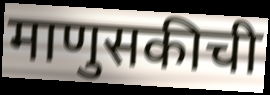
माणुसकीची